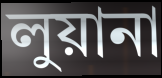
লুয়ানা